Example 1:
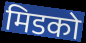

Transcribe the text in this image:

मिडको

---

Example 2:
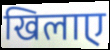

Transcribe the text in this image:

खिलाए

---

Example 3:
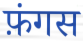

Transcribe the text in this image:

फ़ंगस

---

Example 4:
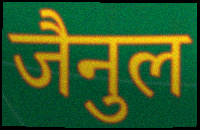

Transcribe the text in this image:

जैनुल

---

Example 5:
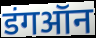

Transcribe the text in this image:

डंगऑन